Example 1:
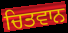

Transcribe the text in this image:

ਚਿਤਵਾਨ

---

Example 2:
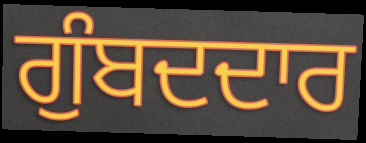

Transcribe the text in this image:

ਗੁੰਬਦਦਾਰ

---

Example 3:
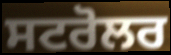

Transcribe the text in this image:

ਸਟਰੋਲਰ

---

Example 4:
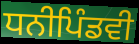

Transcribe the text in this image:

ਧਨੀਪਿੰਡਵੀ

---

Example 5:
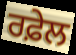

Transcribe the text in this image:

ਰਫ਼ੇਲ